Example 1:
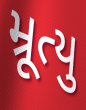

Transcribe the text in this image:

મ્રૂત્યુ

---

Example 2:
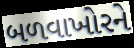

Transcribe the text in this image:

બળવાખોરને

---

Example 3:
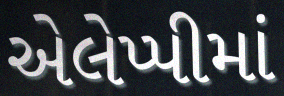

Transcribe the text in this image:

એલેપ્પીમાં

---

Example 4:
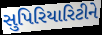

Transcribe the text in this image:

સુપિરિયારિટીને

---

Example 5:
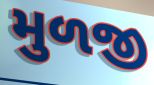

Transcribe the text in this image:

મુળજી